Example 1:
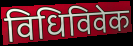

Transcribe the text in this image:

विधिविवेक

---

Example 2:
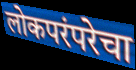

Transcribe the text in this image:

लोकपरंपरेचा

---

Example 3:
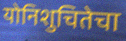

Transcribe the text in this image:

योनिशुचितेचा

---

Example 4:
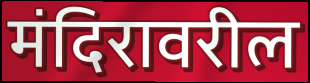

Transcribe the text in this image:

मंदिरावरील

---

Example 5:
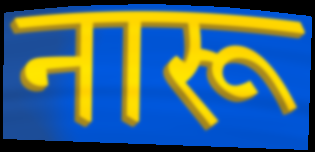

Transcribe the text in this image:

नारू